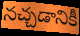
నచ్చడానికీ